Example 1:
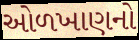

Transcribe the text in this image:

ઓળખાણનો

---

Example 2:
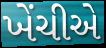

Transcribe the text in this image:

ખેંચીએ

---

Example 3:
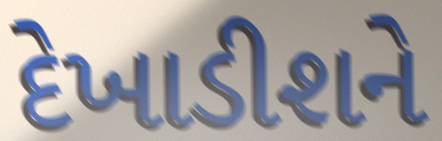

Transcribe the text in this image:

દેખાડીશને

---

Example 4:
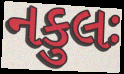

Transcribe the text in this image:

નકુલઃ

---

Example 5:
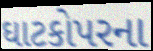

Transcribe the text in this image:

ઘાટકોપરના